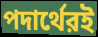
পদার্থেরই